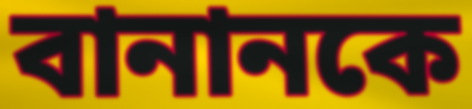
বানানকে